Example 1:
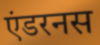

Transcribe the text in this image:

एंडरनस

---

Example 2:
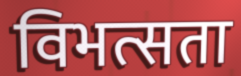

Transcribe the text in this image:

विभत्सता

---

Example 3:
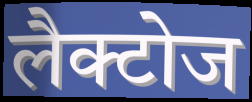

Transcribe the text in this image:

लैक्‍टोज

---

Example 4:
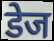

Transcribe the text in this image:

डेज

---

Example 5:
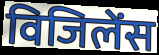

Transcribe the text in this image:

विजिलेंस